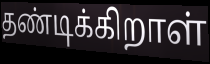
தண்டிக்கிறாள்